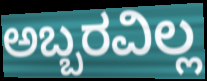
ಅಬ್ಬರವಿಲ್ಲ